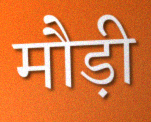
मौड़ी